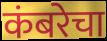
कंबरेचा